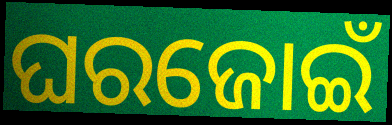
ଘରଜୋଇଁ